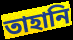
তাহানি